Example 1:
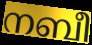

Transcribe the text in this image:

നബീ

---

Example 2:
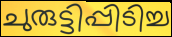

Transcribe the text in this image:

ചുരുട്ടിപ്പിടിച്ച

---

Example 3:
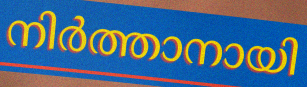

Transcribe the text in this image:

നിർത്താനായി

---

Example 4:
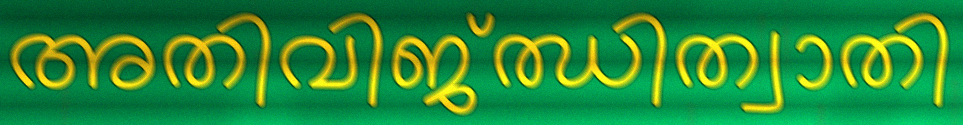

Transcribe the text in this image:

അതിവിജ്ഝിത്വാതി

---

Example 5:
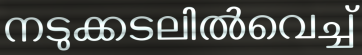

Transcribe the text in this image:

നടുക്കടലിൽവെച്ച്